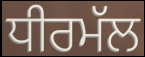
ਧੀਰਮੱਲ